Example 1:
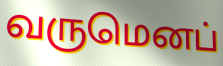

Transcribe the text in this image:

வருமெனப்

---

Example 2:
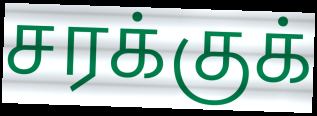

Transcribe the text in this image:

சரக்குக்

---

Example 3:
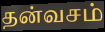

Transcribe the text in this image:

தன்வசம்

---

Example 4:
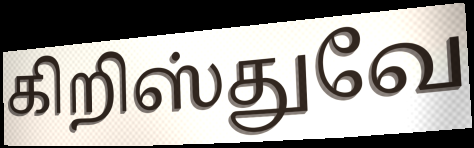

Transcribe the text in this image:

கிறிஸ்துவே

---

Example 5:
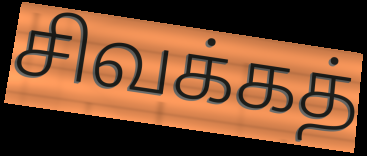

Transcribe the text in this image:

சிவக்கத்